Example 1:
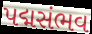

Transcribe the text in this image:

પદ્મસંભવ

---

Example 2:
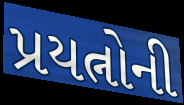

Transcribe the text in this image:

પ્રયત્નોની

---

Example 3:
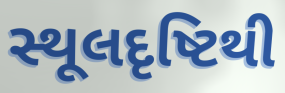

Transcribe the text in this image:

સ્થૂલદૃષ્ટિથી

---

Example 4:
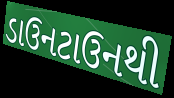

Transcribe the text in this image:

ડાઉનટાઉનથી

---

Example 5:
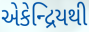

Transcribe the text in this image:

એકેન્દ્રિયથી